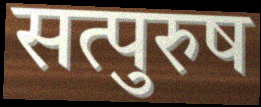
सत्पुरुष